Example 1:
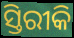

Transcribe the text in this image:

ସ୍ତିରୀକି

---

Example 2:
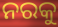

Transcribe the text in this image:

ନରକୁ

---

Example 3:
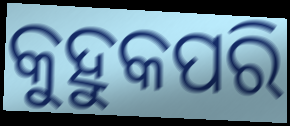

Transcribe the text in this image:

କୁହୁକପରି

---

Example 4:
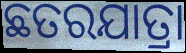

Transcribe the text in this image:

ଛତରଯାତ୍ରା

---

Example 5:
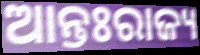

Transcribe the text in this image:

ଆନ୍ତଃରାଜ୍ୟ